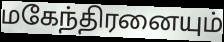
மகேந்திரனையும்